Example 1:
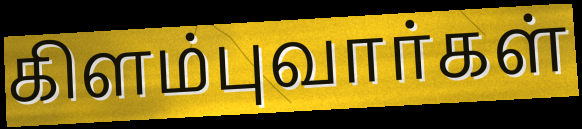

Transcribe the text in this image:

கிளம்புவார்கள்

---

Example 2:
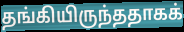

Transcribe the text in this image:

தங்கியிருந்ததாகக்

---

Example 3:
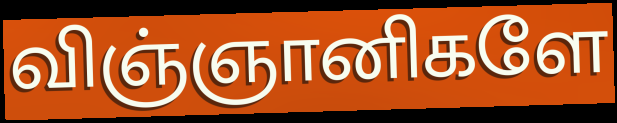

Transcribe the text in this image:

விஞ்ஞானிகளே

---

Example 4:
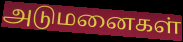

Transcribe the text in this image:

அடுமனைகள்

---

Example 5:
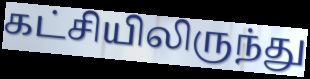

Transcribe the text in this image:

கட்சியிலிருந்து